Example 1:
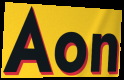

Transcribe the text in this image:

Aon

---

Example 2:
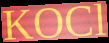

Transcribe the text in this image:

KOCl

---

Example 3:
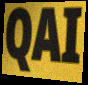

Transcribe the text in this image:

QAI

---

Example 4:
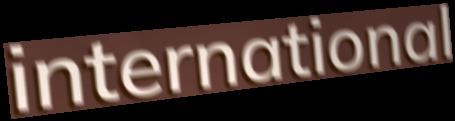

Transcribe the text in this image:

international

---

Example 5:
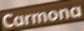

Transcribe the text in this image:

Carmona